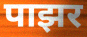
पाझर